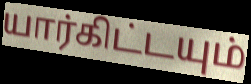
யார்கிட்டயும்